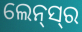
ଲେନ୍‌ସ୍‍ର